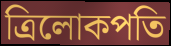
ত্রিলোকপতি